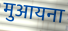
मुआयना